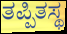
ತಪ್ಪಿತಸ್ಥ